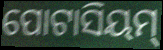
ପୋଟାସିୟମ୍